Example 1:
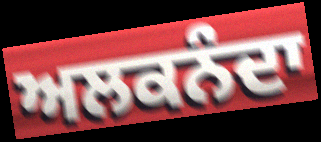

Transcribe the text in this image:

ਅਲਕਨੰਦਾ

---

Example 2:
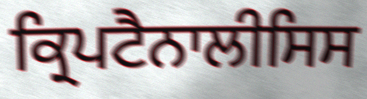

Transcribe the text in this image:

ਕ੍ਰਿਪਟੈਨਾਲੀਸਿਸ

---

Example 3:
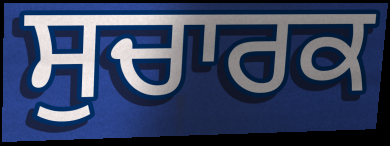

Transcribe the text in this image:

ਸੁਚਾਰਕ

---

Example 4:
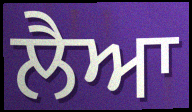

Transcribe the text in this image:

ਲੈਆ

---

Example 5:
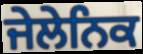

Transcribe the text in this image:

ਜੇਲੇਨਿਕ